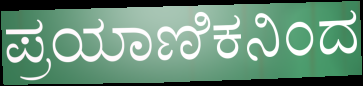
ಪ್ರಯಾಣಿಕನಿಂದ